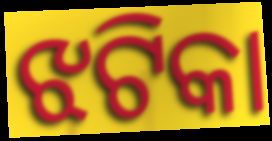
ଝଟିକା